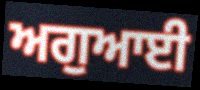
ਅਗੁਆਈ